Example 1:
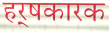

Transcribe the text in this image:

हर्षकारक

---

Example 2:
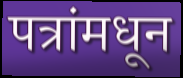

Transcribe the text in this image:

पत्रांमधून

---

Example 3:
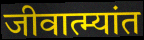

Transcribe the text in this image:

जीवात्म्यांत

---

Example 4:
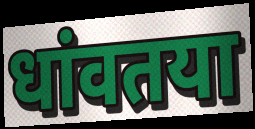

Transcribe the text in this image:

धांवतया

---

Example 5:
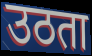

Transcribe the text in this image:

उठता